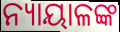
ନ୍ୟାୟାଳଙ୍କ